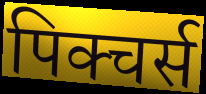
पिक्चर्स